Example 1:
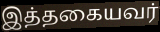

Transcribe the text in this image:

இத்தகையவர்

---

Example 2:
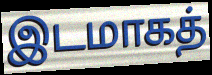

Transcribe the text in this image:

இடமாகத்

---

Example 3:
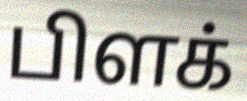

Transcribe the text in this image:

பிளக்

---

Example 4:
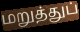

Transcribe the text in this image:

மறுத்துப்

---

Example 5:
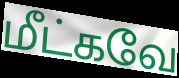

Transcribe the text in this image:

மீட்கவே